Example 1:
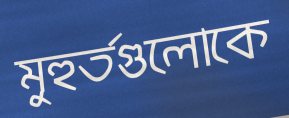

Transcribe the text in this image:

মুহুর্তগুলোকে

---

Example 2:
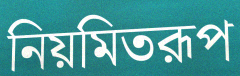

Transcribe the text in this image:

নিয়মিতরূপ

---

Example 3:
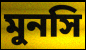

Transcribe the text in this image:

মুনসি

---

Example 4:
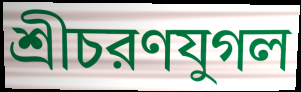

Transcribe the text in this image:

শ্রীচরণযুগল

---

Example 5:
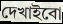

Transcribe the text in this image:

দেখাইবো